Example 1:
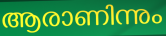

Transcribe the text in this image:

ആരാണിന്നും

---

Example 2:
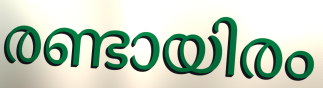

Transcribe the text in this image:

രണ്ടായിരം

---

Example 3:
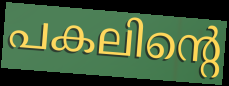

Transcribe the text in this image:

പകലിന്റെ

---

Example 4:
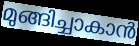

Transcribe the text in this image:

മുങ്ങിച്ചാകാൻ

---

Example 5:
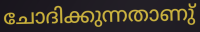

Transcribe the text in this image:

ചോദിക്കുന്നതാണു്